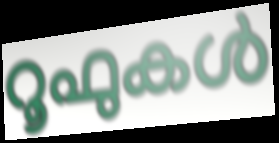
റൂഫുകൾ